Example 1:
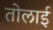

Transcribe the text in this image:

तोलाई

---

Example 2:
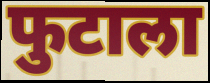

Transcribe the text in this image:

फुटाला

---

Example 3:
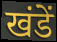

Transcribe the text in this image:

खंडें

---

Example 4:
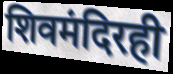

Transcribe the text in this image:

शिवमंदिरही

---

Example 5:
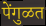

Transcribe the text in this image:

पेंगुळत